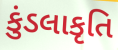
કુંડલાકૃતિ